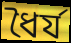
ধৈর্য